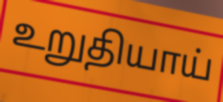
உறுதியாய்